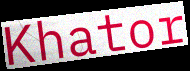
Khator